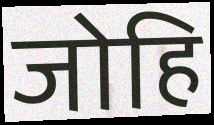
जोहि